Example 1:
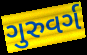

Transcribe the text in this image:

ગુરુવર્ગ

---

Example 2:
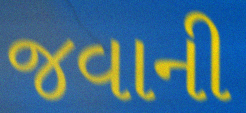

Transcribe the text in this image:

જવાની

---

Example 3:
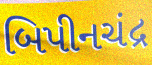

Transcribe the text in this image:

બિપીનચંદ્ર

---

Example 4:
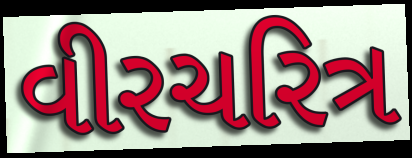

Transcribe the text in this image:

વીરચરિત્ર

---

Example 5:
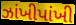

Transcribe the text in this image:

ઝાંખીપાંખી